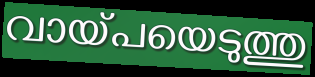
വായ്പയെടുത്തു